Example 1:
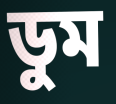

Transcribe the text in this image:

ডুম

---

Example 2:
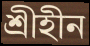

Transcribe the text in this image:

শ্রীহীন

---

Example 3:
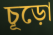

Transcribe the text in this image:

চূড়ো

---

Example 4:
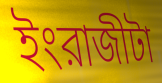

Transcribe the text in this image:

ইংরাজীটা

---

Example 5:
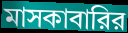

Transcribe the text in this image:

মাসকাবারির